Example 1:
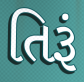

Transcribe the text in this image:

તિરૂં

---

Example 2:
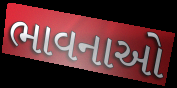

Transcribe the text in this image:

ભાવનાઓ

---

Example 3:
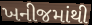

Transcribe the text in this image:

ખનીજમાંથી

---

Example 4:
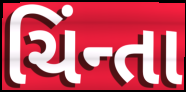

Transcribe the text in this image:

ચિંન્તા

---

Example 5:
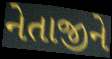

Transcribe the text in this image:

નેતાજીને